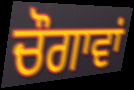
ਚੌਗਾਵਾਂ